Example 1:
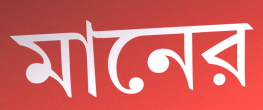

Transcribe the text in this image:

মানের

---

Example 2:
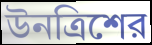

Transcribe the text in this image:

উনত্রিশের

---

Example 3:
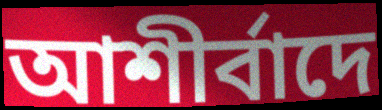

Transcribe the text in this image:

আশীর্বাদে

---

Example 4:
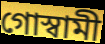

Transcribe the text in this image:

গোস্বামী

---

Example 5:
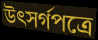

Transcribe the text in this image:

উৎসর্গপত্রে